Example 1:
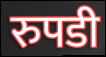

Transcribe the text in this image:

रुपडी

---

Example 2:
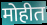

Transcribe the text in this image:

मोहीत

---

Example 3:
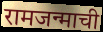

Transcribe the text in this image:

रामजन्माची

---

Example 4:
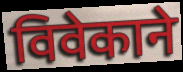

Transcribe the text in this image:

विवेकाने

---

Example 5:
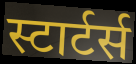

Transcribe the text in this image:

स्टार्टर्स